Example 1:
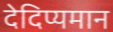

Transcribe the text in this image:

देदिप्यमान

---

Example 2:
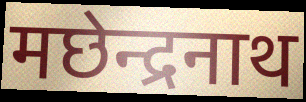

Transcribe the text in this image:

मछेन्द्रनाथ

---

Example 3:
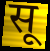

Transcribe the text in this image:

सू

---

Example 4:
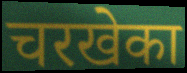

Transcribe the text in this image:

चरखेका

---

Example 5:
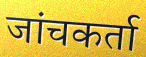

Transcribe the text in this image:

जांचकर्ता